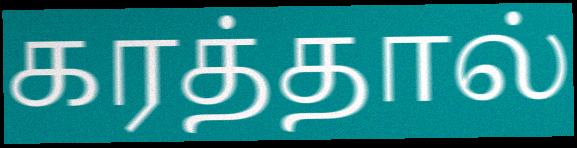
கரத்தால்